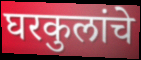
घरकुलांचे